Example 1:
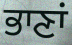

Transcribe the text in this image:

ਭਾਣਾਂ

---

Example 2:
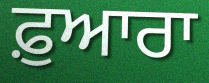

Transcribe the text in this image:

ਫ਼ੁਆਰਾ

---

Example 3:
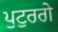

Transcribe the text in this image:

ਪੁਟੁਰਗੇ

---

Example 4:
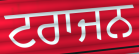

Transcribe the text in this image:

ਟਰਾਜਨ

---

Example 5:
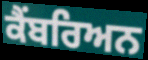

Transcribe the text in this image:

ਕੈਂਬਰਿਅਨ